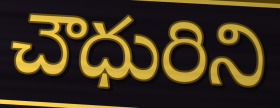
చౌధురిని